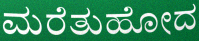
ಮರೆತುಹೋದ